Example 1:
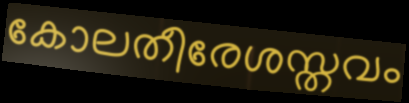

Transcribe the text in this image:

കോലതീരേശസ്തവം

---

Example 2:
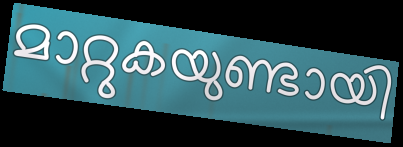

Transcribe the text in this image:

മാറ്റുകയുണ്ടായി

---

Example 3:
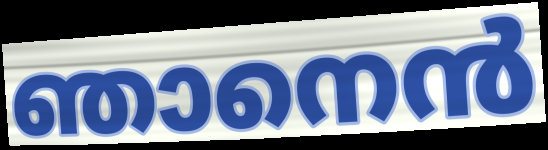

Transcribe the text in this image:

ഞാനെൻ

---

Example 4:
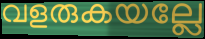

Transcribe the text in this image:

വളരുകയല്ലേ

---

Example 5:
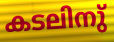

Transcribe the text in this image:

കടലിനു്